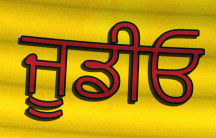
ਜੂਡੀਓ